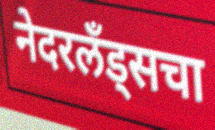
नेदरलँड्सचा